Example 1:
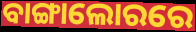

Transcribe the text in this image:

ବାଙ୍ଗାଲୋରରେ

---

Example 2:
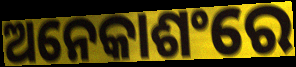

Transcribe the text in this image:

ଅନେକାଶଂରେ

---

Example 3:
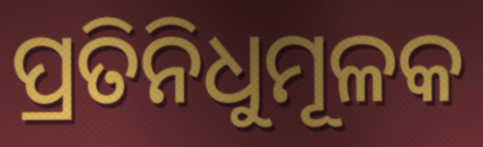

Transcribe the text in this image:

ପ୍ରତିନିଧୁମୂଳକ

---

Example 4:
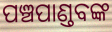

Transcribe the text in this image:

ପଞ୍ଚପାଣ୍ଡବଙ୍କ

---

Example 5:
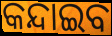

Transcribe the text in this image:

କନ୍ଦାଇବ